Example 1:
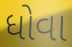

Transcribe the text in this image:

ધોવા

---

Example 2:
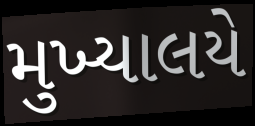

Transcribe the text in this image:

મુખ્યાલયે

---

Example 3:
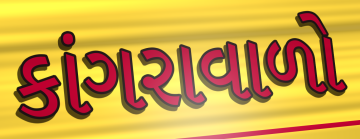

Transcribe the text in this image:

કાંગરાવાળો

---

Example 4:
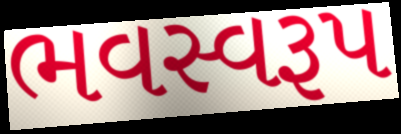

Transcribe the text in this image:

ભવસ્વરૂપ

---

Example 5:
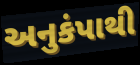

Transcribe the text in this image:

અનુકંપાથી